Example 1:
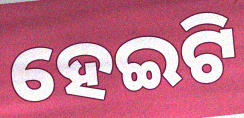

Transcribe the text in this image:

ହେଇଟି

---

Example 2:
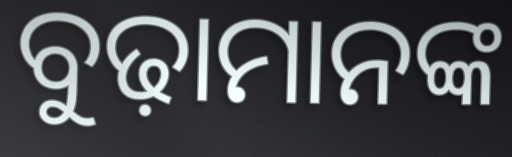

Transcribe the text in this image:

ବୁଢ଼ାମାନଙ୍କ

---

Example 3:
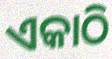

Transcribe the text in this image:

ଏକାଠି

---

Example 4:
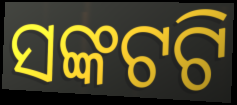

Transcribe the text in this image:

ସଙ୍କଟଟି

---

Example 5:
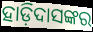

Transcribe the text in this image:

ହାଡ଼ିଦାସଙ୍କର